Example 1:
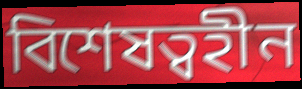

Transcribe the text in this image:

বিশেষত্বহীন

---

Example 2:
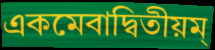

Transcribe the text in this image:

একমেবাদ্বিতীয়ম্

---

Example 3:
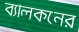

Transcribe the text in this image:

ব্যালকনের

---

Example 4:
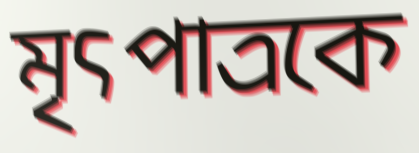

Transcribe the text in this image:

মৃৎপাত্রকে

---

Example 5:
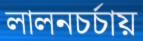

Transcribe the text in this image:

লালনচর্চায়